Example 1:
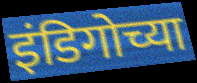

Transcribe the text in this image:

इंडिगोच्या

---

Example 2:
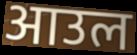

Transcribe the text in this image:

आउल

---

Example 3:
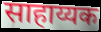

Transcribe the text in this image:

साहाय्यक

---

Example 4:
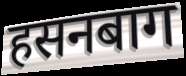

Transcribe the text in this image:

हसनबाग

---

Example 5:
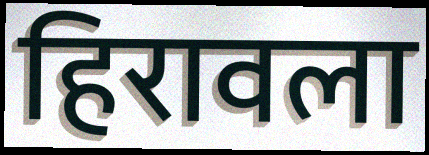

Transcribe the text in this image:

हिरावला